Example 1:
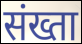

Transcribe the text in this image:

संख्ता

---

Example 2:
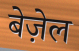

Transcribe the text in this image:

बेज़ेल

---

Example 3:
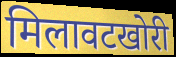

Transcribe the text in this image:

मिलावटखोरी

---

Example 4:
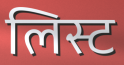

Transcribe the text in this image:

लिस्ट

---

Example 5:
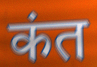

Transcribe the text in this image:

कंत